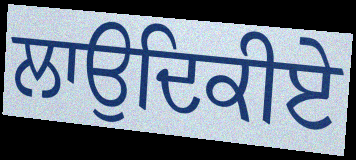
ਲਾਉਦਿਕੀਏ